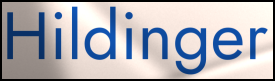
Hildinger